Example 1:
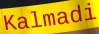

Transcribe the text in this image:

Kalmadi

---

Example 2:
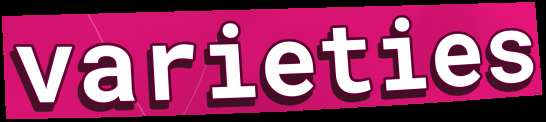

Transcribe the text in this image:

varieties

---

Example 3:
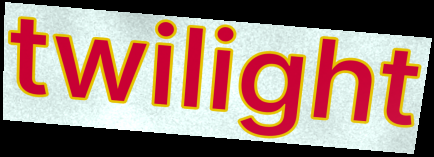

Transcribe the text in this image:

twilight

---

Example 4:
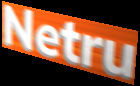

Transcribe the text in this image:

Netru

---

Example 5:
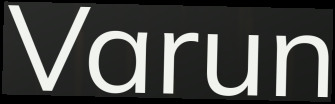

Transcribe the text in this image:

Varun